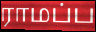
ராமப்ப